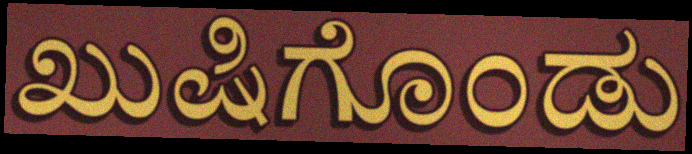
ಖುಷಿಗೊಂಡು